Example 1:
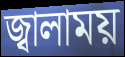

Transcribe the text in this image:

জ্বালাময়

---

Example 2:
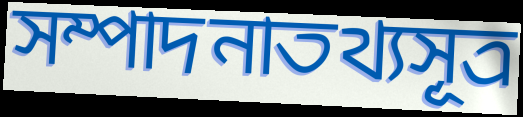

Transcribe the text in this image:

সম্পাদনাতথ্যসূত্র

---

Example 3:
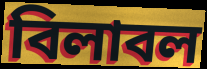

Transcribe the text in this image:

বিলাবল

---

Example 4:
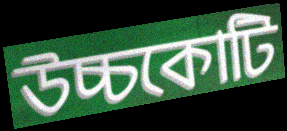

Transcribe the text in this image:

উচ্চকোটি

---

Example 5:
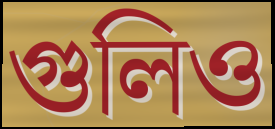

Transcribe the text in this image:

গুলিও